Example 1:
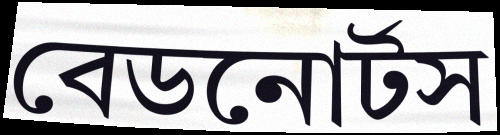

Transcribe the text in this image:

বেডনোর্টস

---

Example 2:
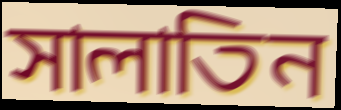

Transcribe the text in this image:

সালাতিন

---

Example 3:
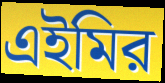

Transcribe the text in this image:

এইমির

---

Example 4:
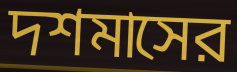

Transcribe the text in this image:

দশমাসের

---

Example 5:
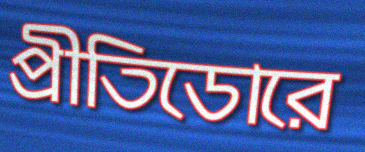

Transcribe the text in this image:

প্রীতিডোরে